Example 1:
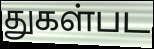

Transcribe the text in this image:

துகள்பட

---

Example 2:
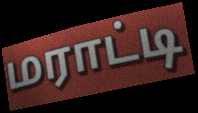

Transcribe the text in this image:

மராட்டி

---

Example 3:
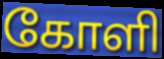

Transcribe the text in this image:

கோளி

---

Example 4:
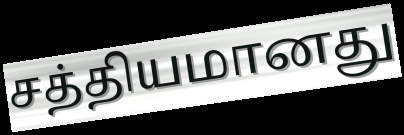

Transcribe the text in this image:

சத்தியமானது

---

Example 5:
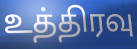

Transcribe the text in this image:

உத்திரவு